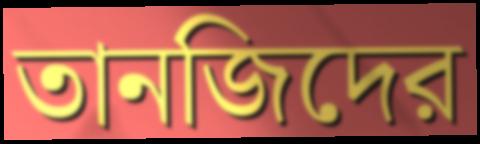
তানজিদের